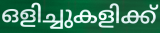
ഒളിച്ചുകളിക്ക്